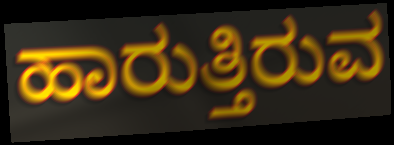
ಹಾರುತ್ತಿರುವ